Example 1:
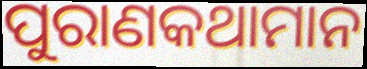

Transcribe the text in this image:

ପୁରାଣକଥାମାନ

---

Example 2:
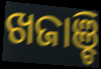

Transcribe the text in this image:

ଖଜାଞ୍ଚି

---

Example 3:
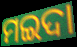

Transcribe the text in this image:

ମଇଦା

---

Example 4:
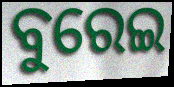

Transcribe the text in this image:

ବୁରେଇ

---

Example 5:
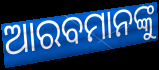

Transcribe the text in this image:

ଆରବମାନଙ୍କୁ